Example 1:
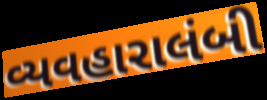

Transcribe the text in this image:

વ્યવહારાલંબી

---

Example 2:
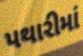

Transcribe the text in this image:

પથારીમાં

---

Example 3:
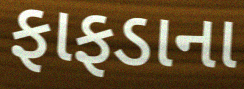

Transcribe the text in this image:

ફાફડાના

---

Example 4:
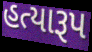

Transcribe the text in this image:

હત્યારૂપ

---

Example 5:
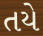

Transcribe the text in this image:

તયે